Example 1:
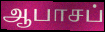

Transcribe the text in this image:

ஆபாசப்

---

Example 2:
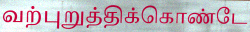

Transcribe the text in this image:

வற்புறுத்திக்கொண்டே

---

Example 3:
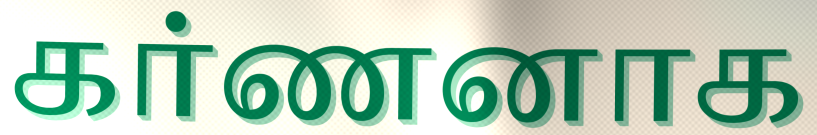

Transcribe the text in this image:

கர்ணனாக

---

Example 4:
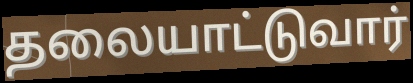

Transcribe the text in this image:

தலையாட்டுவார்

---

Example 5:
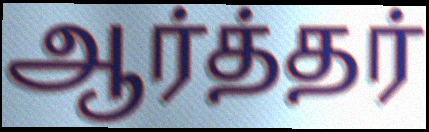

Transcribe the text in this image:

ஆர்த்தர்